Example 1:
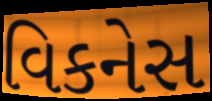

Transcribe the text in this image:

વિકનેસ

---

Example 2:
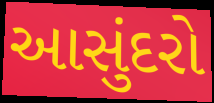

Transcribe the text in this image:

આસુંદરો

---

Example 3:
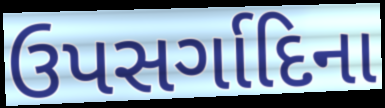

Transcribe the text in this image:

ઉપસર્ગાદિના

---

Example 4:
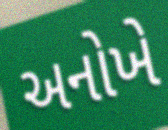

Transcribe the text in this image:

અનોખે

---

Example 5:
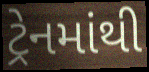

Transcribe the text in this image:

ટ્રેનમાંથી